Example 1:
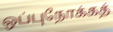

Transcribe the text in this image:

ஒப்புநோக்கத்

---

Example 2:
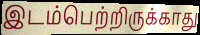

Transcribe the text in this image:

இடம்பெற்றிருக்காது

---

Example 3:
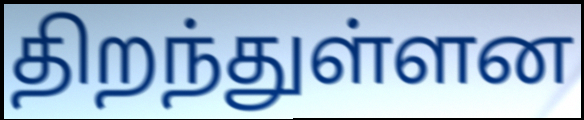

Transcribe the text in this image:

திறந்துள்ளன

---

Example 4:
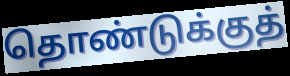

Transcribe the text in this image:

தொண்டுக்குத்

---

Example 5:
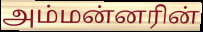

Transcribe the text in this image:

அம்மன்னரின்